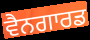
ਵੈਨਗਾਰਡ